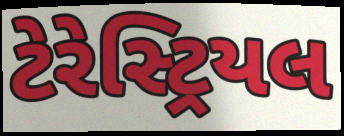
ટેરેસ્ટ્રિયલ